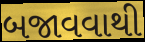
બજાવવાથી